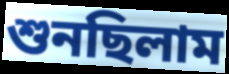
শুনছিলাম